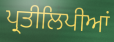
ਪ੍ਰਤੀਲਿਪੀਆਂ